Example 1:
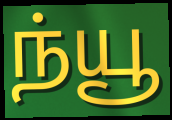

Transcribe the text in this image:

ந்யூ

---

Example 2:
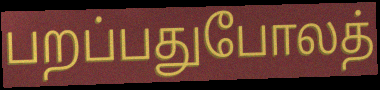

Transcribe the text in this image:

பறப்பதுபோலத்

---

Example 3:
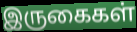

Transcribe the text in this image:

இருகைகள்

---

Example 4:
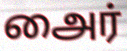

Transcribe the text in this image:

அைர்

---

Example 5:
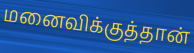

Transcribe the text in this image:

மனைவிக்குத்தான்